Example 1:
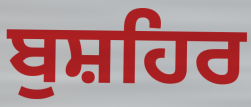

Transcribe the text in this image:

ਬੁਸ਼ਹਿਰ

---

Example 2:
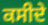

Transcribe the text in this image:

ਕਸੀਦੇ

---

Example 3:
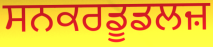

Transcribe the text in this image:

ਸਨਕਰਡੂਡਲਜ਼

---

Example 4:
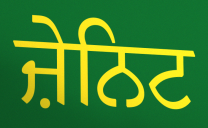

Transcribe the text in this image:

ਜ਼ੇਨਿਟ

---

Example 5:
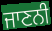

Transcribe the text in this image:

ਜਾਣਨੀ